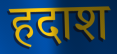
हदाश